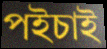
পইচাই